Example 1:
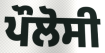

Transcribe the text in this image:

ਪੌਲੋਸੀ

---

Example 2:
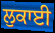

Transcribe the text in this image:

ਲੁਕਾਈ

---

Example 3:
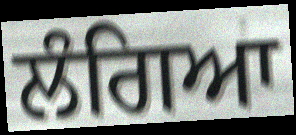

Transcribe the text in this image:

ਲੰਗਿਆ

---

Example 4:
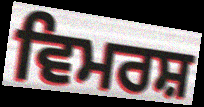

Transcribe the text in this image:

ਵਿਮਰਸ਼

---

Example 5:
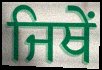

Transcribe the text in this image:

ਜਿਥੇਂ